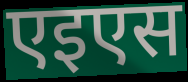
एइएस